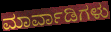
ಮಾರ್ವಾಡಿಗಳು